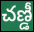
చణ్డీ